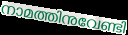
നാമത്തിനുവേണ്ടി